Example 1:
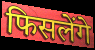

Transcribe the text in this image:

फिसलेंगे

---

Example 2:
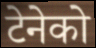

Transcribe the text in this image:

टेनेको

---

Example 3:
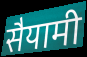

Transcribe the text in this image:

सैयामी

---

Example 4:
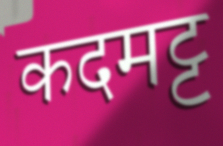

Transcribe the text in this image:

कदमट्ट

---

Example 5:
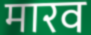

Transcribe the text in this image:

मारव